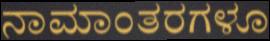
ನಾಮಾಂತರಗಳೂ